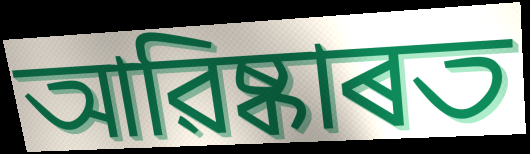
আৱিষ্কাৰত